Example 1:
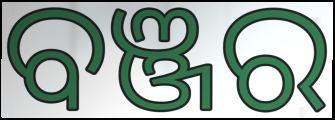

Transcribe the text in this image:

ବଞ୍ଜର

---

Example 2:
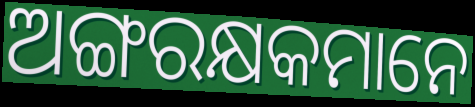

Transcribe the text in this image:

ଅଙ୍ଗରକ୍ଷକମାନେ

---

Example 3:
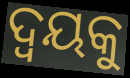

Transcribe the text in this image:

ଦ୍ୱୟକୁ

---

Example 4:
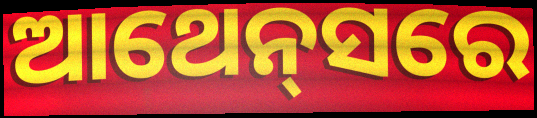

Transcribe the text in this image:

ଆଥେନ୍‍ସରେ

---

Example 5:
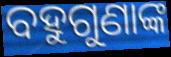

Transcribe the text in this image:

ବହୁଗୁଣାଙ୍କ